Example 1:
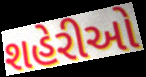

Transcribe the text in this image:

શહેરીઓ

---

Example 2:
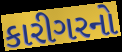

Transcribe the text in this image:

કારીગરનો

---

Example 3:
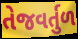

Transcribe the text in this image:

તેજવર્તુળ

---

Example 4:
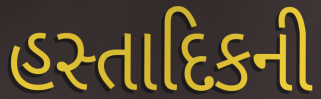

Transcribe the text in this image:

હસ્તાદિકની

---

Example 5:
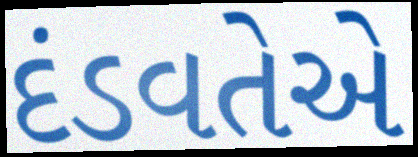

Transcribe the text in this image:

દંડવતેએ